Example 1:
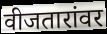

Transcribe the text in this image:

वीजतारांवर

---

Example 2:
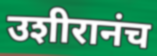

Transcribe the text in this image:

उशीरानंच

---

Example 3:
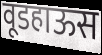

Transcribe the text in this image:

वूडहाऊस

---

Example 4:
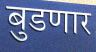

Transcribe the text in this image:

बुडणार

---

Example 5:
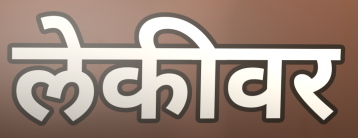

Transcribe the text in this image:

लेकीवर